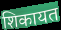
शिकायत